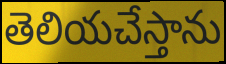
తెలియచేస్తాను